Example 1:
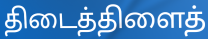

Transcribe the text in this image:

திடைத்திளைத்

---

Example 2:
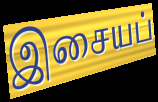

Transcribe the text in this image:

இசையப்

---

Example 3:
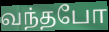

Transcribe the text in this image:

வந்தபோ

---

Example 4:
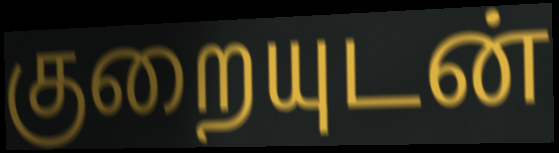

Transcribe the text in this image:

குறையுடன்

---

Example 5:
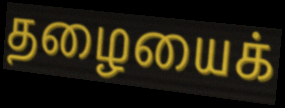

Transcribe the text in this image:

தழையைக்